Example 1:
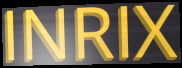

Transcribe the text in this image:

INRIX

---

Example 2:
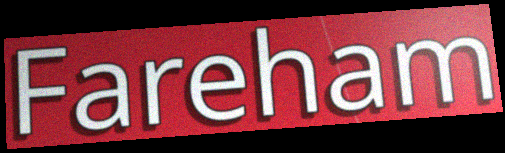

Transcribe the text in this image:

Fareham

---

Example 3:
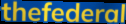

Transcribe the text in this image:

thefederal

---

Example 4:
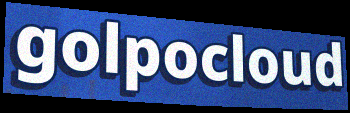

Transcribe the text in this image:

golpocloud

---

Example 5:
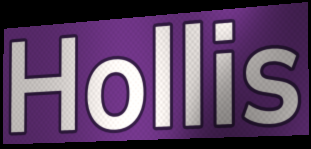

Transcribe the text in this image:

Hollis